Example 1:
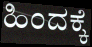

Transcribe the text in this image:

ಹಿಂದಕ್ಕೆ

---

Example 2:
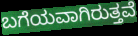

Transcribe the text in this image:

ಬಗೆಯವಾಗಿರುತ್ತವೆ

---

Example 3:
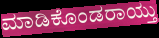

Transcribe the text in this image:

ಮಾಡಿಕೊಂಡರಾಯ್ತು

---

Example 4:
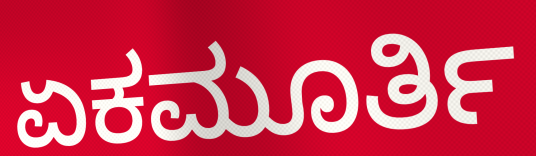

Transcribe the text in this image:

ಏಕಮೂರ್ತಿ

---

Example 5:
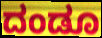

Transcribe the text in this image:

ದಂಡೂ